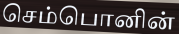
செம்பொனின்